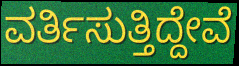
ವರ್ತಿಸುತ್ತಿದ್ದೇವೆ